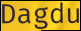
Dagdu